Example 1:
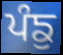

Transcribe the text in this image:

ਪੰਙੁ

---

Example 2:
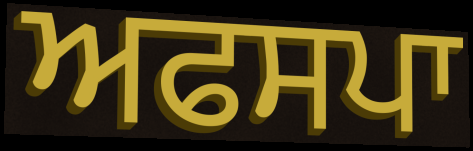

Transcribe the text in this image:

ਅਫਸਪਾ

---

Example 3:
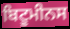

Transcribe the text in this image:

ਬਿਟੂਮੀਨਸ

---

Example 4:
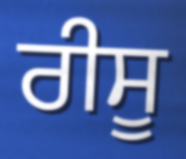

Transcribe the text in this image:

ਰੀਸੂ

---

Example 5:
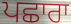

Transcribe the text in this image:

ਪਛਾਰਾ